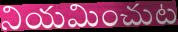
నియమించుట